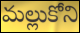
మల్లుకోని